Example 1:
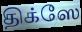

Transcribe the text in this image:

திக்ஸே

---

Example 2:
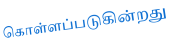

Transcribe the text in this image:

கொள்ளப்படுகின்றது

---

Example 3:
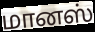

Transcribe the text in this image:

மானஸ்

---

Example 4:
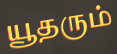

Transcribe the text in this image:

யூதரும்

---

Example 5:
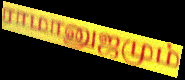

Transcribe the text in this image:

ராமானுஜமும்